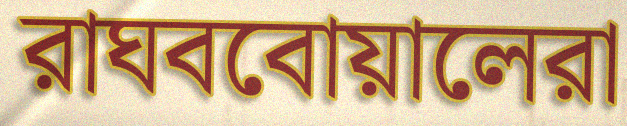
রাঘববোয়ালেরা